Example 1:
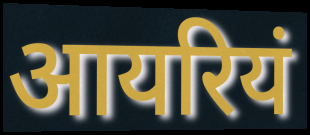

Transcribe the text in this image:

आयरियं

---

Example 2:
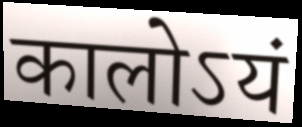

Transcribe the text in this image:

कालोऽयं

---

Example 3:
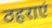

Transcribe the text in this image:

ठहराएं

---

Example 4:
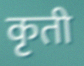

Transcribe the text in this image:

कृती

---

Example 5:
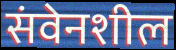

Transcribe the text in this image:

संवेनशील